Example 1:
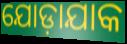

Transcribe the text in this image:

ଯୋଡ଼ାଯାକ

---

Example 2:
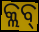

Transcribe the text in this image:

କ୍ଲବ୍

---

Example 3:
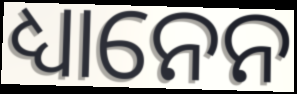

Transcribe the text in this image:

ଧ୍ୟାନେନ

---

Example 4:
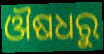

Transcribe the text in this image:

ଔଷଧରୁ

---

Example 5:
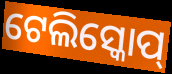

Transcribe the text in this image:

ଟେଲିସ୍କୋପ୍